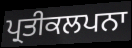
ਪ੍ਰਤੀਕਲਪਨਾ